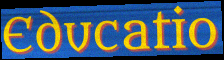
Educatio